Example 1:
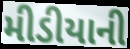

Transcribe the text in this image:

મીડીયાની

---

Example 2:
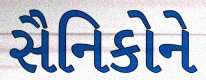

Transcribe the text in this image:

સૈનિકોને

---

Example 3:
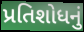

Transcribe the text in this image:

પ્રતિશોધનું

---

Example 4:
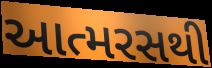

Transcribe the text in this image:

આત્મરસથી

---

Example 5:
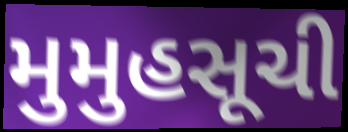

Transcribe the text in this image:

મુમુહસૂચી